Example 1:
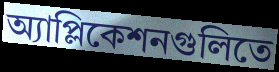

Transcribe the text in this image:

অ্যাপ্লিকেশনগুলিতে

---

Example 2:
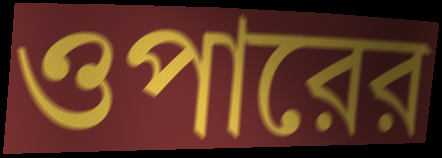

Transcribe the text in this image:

ওপারের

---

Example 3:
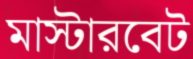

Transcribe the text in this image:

মাস্টারবেট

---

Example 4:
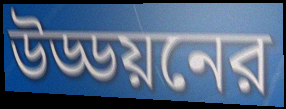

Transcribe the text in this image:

উড্ডয়নের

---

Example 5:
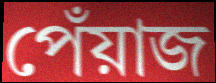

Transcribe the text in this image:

পেঁয়াজ